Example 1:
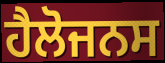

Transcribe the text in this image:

ਹੈਲੋਜਨਸ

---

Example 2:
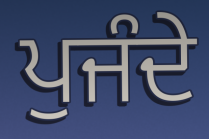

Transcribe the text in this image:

ਪੁਜੰਦੇ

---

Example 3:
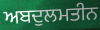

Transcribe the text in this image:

ਅਬਦੁਲਮਤੀਨ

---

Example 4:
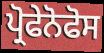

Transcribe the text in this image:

ਪ੍ਰੋਫੇਨੋਫੋਸ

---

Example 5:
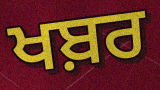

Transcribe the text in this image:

ਖਬ਼ਰ